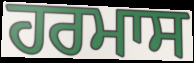
ਹਰਮਾਸ